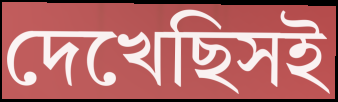
দেখেছিসই